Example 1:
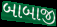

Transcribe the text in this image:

બાબાજી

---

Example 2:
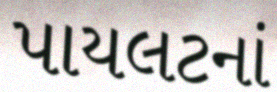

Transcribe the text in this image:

પાયલટનાં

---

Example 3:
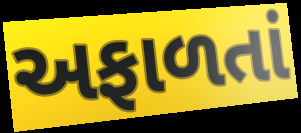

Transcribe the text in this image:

અફાળતાં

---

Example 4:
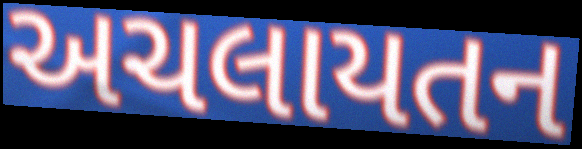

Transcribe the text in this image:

અચલાયતન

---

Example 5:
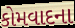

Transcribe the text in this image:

કોમવાદના